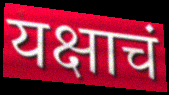
यक्षाचं